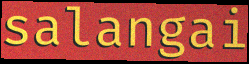
salangai